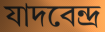
যাদবেন্দ্র